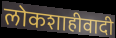
लोकशाहीवादी